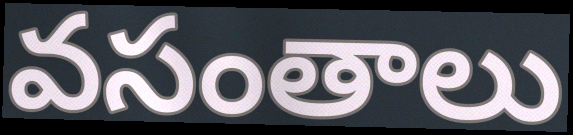
వసంతాలు